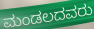
ಮಂಡಲದವರು